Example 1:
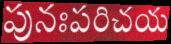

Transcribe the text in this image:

పునఃపరిచయ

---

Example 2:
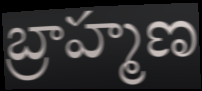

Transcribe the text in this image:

బ్రాహ్మణ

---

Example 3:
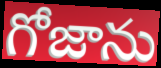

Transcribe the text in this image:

గోజాను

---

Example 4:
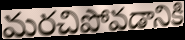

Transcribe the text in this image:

మరచిపోవడానికి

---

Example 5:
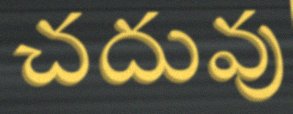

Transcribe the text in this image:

చదువు